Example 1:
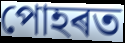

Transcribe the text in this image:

পোহৰত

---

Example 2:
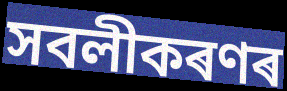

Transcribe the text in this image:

সবলীকৰণৰ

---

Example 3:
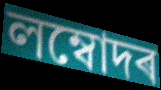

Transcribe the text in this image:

লম্বোদৰ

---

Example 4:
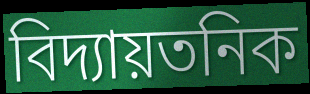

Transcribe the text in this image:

বিদ্যায়তনিক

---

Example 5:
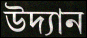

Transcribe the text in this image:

উদ্যান